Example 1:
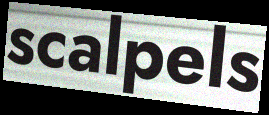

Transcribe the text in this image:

scalpels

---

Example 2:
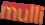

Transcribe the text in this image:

mulli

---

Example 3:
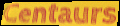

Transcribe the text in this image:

Centaurs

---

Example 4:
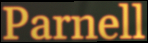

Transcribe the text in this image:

Parnell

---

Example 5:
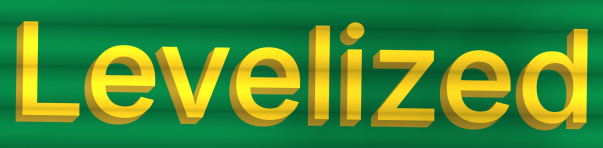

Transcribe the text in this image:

Levelized